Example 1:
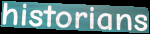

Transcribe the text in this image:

historians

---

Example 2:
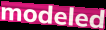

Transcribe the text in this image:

modeled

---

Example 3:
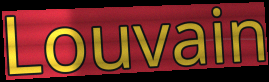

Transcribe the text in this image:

Louvain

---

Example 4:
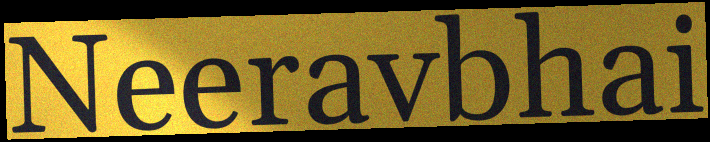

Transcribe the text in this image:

Neeravbhai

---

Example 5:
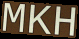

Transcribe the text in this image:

MKH